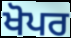
ਖੋਪਰ